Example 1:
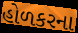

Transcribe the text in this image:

હોળકરના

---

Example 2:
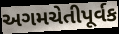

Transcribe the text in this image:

અગમચેતીપૂર્વક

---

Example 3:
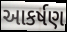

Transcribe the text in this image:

આકર્ષણ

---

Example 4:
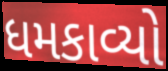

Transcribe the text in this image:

ધમકાવ્યો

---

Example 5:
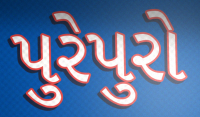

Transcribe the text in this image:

પુરેપુરો